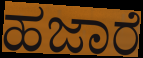
ಹಜಾರೆ